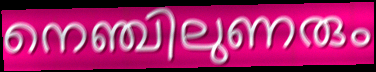
നെഞ്ചിലുണരും